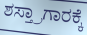
ಶಸ್ತ್ರಾಗಾರಕ್ಕೆ